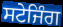
ਸਟੇਜਿੰਗ